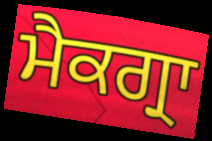
ਮੈਕਗ੍ਰਾ